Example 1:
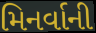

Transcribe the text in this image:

મિનર્વાની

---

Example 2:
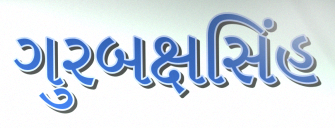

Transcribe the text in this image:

ગુરબક્ષસિંહ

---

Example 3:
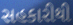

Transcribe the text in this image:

સહકારીથી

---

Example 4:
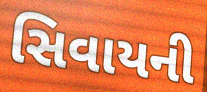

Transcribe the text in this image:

સિવાયની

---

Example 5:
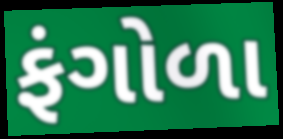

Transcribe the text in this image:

ફંગોળા